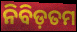
ନିବିଡ଼ତମ